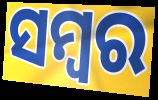
ସମ୍ବର